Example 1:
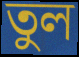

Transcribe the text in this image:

তুল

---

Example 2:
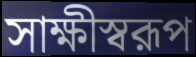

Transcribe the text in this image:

সাক্ষীস্বরূপ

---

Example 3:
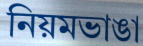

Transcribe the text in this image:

নিয়মভাঙা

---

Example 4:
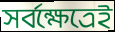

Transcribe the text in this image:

সর্বক্ষেত্রেই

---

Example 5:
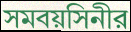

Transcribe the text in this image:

সমবয়সিনীর